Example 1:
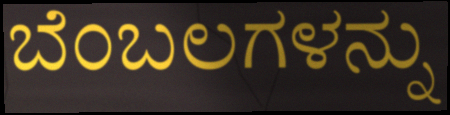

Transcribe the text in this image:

ಬೆಂಬಲಗಳನ್ನು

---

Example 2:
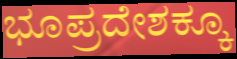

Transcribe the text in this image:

ಭೂಪ್ರದೇಶಕ್ಕೂ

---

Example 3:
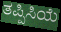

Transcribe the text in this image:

ತಪ್ಪಿಸಿಯೆ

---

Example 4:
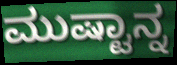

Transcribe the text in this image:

ಮುಷ್ಟಾನ್ನ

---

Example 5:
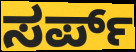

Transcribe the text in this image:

ಸರ್ಪ್